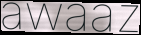
awaaz